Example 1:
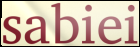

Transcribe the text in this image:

sabiei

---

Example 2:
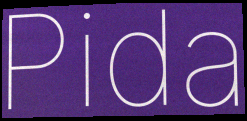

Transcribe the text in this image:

Pida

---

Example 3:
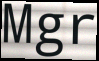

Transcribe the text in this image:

Mgr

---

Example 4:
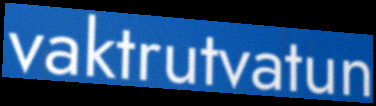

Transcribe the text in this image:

vaktrutvatun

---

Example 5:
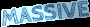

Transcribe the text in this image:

MASSIVE